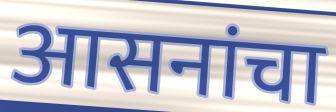
आसनांचा